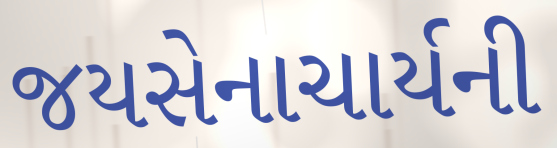
જયસેનાચાર્યની